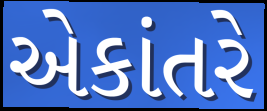
એકાંતરે